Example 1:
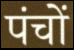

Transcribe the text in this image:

पंचों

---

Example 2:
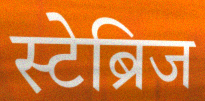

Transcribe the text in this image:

स्टेब्रिज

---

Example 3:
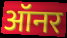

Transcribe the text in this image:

ऑनर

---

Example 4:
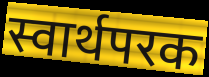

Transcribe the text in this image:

स्वार्थपरक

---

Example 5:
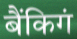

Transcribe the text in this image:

बैंकिगं